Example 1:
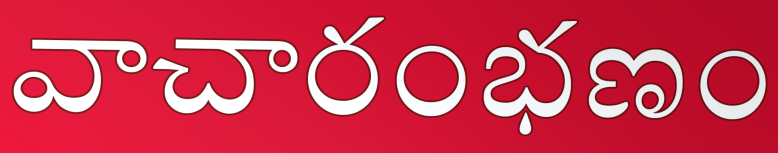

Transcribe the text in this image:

వాచారంభణం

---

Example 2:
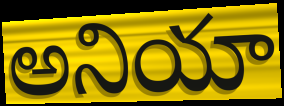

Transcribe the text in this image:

అనియా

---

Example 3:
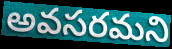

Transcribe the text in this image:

అవసరమని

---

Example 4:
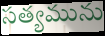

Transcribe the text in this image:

సత్యమును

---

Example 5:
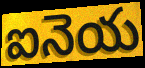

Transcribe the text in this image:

ఐనెయ